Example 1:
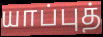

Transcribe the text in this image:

யாப்புத்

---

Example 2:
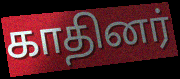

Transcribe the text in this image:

காதினர்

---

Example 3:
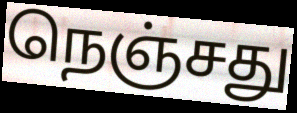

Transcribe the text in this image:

நெஞ்சது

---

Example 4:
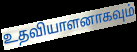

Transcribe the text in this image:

உதவியாளனாகவும்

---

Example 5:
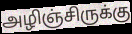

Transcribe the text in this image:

அழிஞ்சிருக்கு